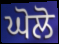
ਘੋਲੋ